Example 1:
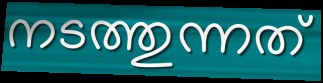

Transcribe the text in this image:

നടത്തുന്നത്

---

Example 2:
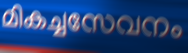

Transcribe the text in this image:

മികച്ചസേവനം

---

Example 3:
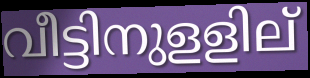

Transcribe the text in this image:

വീട്ടിനുളളില്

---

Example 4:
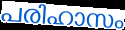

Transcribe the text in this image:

പരിഹാസം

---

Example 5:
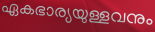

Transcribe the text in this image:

ഏകഭാര്യയുള്ളവനും